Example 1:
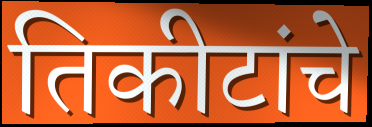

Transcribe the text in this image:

तिकीटांचे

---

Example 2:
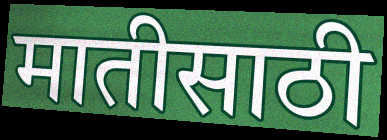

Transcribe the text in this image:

मातीसाठी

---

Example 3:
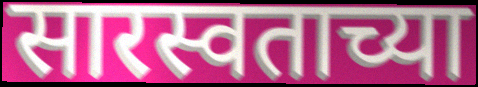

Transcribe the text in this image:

सारस्वताच्या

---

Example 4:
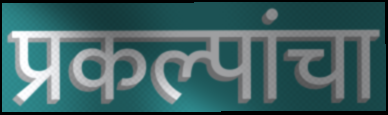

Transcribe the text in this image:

प्रकल्पांचा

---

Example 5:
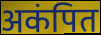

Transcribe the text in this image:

अकंपित